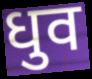
धुव